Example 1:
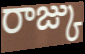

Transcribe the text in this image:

రాజ్కు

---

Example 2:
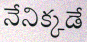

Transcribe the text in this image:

నేనిక్కడే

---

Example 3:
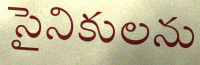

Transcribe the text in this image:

సైనికులను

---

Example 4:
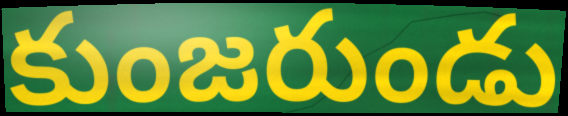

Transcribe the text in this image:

కుంజరుండు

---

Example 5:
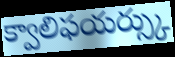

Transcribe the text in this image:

క్వాలిఫయర్స్కు